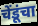
चेंडूंचा